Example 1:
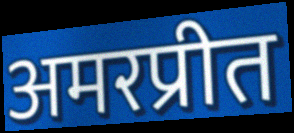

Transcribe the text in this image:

अमरप्रीत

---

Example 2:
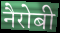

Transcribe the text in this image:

नैरोबी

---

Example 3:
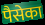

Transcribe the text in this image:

पैसेका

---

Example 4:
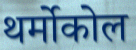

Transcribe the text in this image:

थर्मोकोल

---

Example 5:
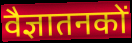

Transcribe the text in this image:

वैज्ञातनकों